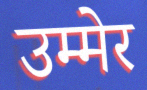
उम्मेर